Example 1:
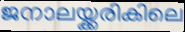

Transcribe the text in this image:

ജനാലയ്ക്കരികിലെ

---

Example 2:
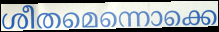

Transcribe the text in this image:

ശീതമെന്നൊക്കെ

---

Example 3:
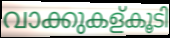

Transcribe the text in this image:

വാക്കുകള്കൂടി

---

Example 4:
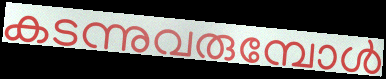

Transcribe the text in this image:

കടന്നുവരുമ്പോൾ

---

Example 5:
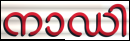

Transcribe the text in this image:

നാഡി